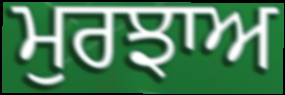
ਮੁਰਝਾਅ